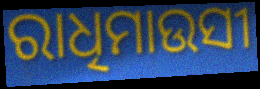
ରାଧିମାଉସୀ